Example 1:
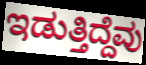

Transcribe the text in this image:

ಇಡುತ್ತಿದ್ದೆವು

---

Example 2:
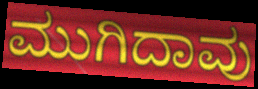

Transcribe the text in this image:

ಮುಗಿದಾವು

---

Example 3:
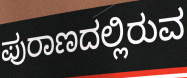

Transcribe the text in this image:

ಪುರಾಣದಲ್ಲಿರುವ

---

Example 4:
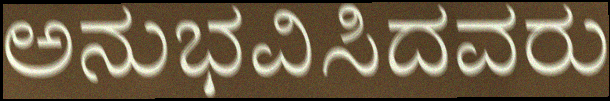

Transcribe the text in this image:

ಅನುಭವಿಸಿದವರು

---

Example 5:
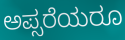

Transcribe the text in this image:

ಅಪ್ಸರೆಯರೂ